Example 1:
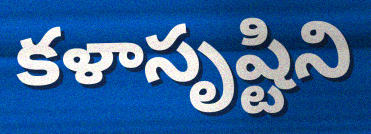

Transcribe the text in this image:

కళాసృష్టిని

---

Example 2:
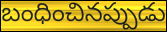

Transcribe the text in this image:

బంధించినప్పుడు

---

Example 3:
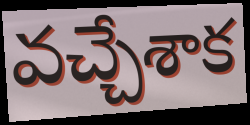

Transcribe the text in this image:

వచ్చేశాక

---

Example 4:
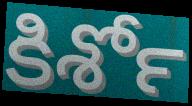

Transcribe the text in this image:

కిశోర్‍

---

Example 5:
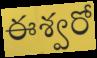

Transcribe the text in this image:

ఈశ్వరో